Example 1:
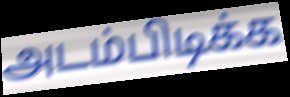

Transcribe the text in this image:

அடம்பிடிக்க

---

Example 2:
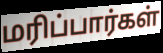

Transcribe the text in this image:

மரிப்பார்கள்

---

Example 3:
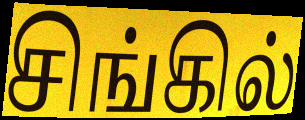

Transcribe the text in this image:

சிங்கில்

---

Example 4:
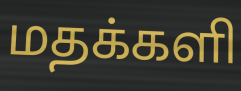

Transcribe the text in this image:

மதக்களி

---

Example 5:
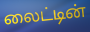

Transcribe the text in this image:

லைட்டின்